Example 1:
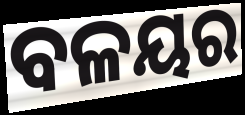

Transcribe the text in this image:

ବଳୟର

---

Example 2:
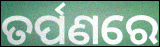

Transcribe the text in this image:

ତର୍ପଣରେ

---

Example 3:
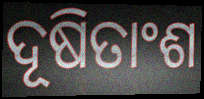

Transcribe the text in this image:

ଦୂଷିତାଂଶ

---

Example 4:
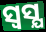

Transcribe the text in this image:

ସ୍ଵସ୍ଯ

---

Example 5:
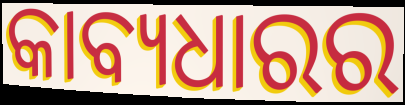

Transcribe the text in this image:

କାବ୍ୟଧାରର